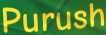
Purush